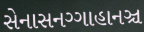
સેનાસનગ્ગાહાનઞ્ચ